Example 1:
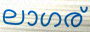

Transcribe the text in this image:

ലാഗര്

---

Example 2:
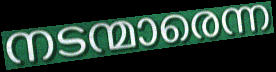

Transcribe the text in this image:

നടന്മാരെന്ന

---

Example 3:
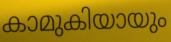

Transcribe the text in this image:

കാമുകിയായും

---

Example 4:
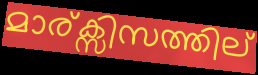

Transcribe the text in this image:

മാര്ക്സിസത്തില്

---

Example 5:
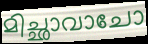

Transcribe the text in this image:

മിച്ഛാവാചോ